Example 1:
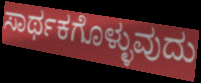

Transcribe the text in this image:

ಸಾರ್ಥಕಗೊಳ್ಳುವುದು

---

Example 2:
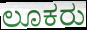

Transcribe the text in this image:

ಲೂಕರು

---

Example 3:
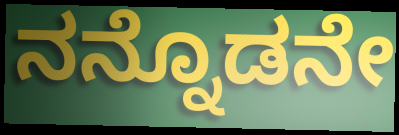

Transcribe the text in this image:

ನನ್ನೊಡನೇ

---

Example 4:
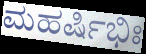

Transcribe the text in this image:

ಮಹರ್ಷಿಭಿಃ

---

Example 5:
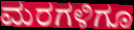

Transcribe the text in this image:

ಮರಗಳಿಗೂ